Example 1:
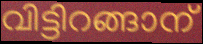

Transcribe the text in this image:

വിട്ടിറങ്ങാന്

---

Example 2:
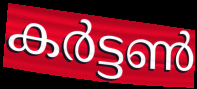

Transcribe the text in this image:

കർട്ടൺ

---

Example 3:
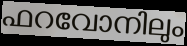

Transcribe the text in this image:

ഫറവോനിലും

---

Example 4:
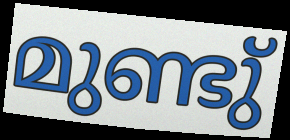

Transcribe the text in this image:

മുണ്ടു്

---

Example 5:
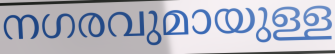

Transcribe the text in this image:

നഗരവുമായുള്ള